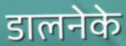
डालनेके